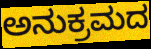
ಅನುಕ್ರಮದ